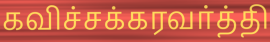
கவிச்சக்கரவர்த்தி